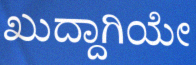
ಖುದ್ದಾಗಿಯೇ